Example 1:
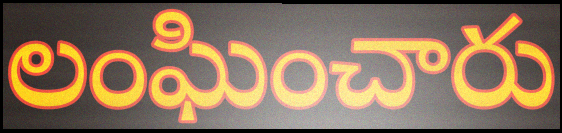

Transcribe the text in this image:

లంఘించారు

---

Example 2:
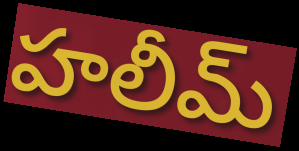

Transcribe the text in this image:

హలీమ్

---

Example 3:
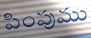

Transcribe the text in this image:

పింపుము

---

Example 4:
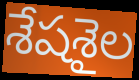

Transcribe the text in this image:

శేషశైల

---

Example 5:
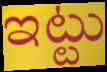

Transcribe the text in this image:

ఇట్టు